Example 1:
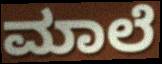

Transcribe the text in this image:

ಮಾಲೆ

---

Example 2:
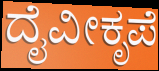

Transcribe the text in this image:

ದೈವೀಕೃಪೆ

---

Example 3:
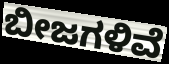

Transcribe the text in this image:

ಬೀಜಗಳಿವೆ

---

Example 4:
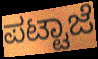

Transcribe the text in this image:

ಪಟ್ಟಾಜೆ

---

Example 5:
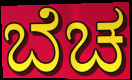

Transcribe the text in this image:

ಬೆಚ